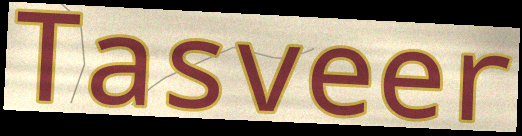
Tasveer